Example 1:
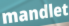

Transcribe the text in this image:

mandlet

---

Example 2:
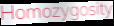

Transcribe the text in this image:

Homozygosity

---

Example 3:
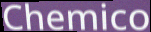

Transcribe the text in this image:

Chemico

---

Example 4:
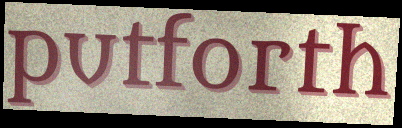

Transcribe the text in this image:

putforth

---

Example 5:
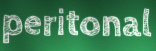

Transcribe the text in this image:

peritonal